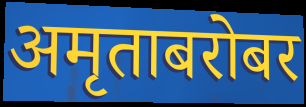
अमृताबरोबर